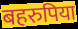
बहरुपिया